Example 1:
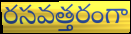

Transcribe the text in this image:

రసవత్తరంగా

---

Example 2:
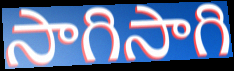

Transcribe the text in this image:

సాగిసాగి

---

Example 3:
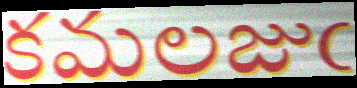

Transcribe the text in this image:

కమలజుఁ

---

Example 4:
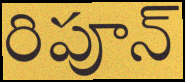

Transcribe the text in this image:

రిపూన్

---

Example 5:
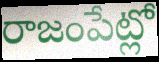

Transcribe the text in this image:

రాజంపేట్లో